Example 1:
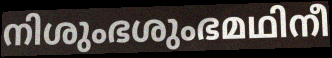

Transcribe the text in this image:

നിശുംഭശുംഭമഥിനീ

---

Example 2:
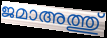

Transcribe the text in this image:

ജമാഅത്തു്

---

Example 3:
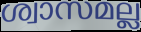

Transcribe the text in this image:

ശ്വാസമല്ല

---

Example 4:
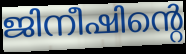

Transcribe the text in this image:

ജിനീഷിന്റെ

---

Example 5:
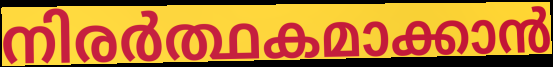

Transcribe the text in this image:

നിരർത്ഥകമാക്കാൻ